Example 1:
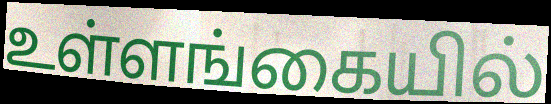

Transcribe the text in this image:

உள்ளங்கையில்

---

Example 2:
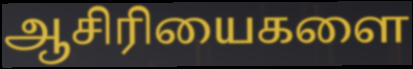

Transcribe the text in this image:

ஆசிரியைகளை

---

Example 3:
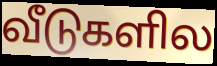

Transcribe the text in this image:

வீடுகளில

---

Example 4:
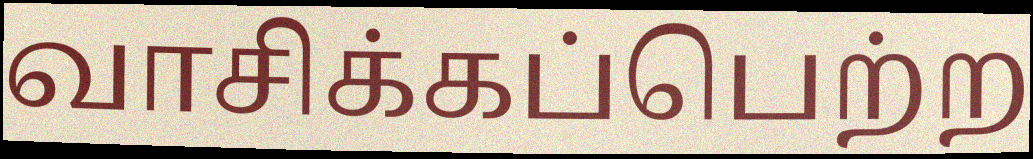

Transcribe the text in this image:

வாசிக்கப்பெற்ற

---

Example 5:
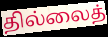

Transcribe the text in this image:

தில்லைத்